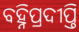
ବହ୍ନିପ୍ରଦୀପ୍ତି